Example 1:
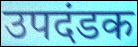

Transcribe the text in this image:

उपदंडक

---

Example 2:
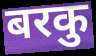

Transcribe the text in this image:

बरकु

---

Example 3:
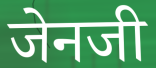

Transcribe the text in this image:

जेनजी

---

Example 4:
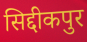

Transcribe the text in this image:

सिद्दीकपुर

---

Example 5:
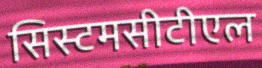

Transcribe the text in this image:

सिस्टमसीटीएल